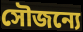
সৌজন্যে